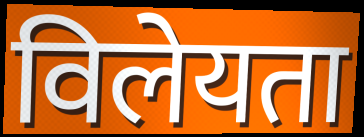
विलेयता